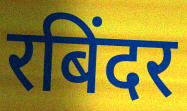
रबिंदर